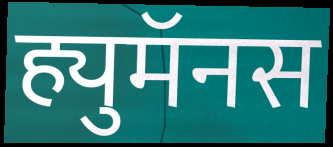
ह्युमॅनस